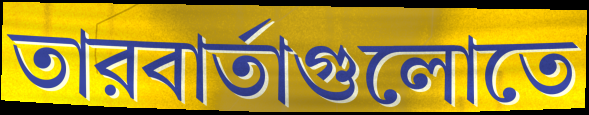
তারবার্তাগুলোতে